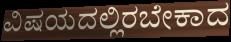
ವಿಷಯದಲ್ಲಿರಬೇಕಾದ